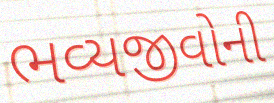
ભવ્યજીવોની